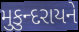
મુકુન્દરાયને